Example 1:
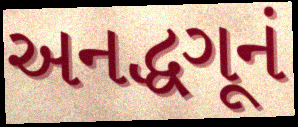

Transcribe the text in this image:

અનદ્ધગૂનં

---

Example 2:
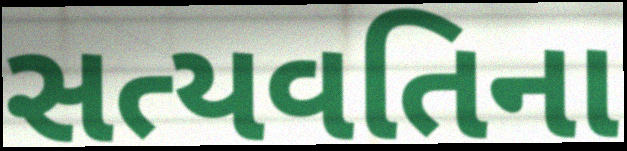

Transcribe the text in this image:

સત્યવતિના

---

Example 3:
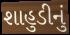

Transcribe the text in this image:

શાહુડીનું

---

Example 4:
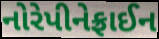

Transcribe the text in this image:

નોરેપીનેફ્રાઈન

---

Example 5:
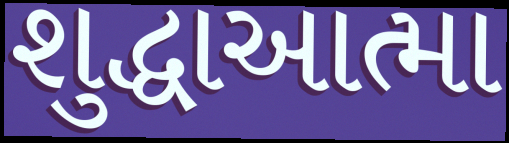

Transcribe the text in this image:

શુદ્ધાઆત્મા